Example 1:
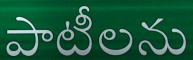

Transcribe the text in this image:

పాటీలను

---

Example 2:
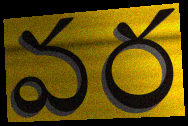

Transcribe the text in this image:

వర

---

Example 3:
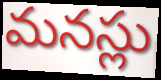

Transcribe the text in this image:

మనస్లు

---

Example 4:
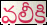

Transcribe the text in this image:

వలీకి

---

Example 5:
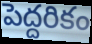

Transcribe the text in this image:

పెద్దరికం